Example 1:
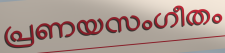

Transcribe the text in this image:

പ്രണയസംഗീതം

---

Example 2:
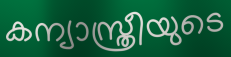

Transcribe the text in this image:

കന്യാസ്ത്രീയുടെ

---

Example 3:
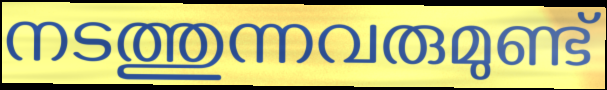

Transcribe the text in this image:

നടത്തുന്നവരുമുണ്ട്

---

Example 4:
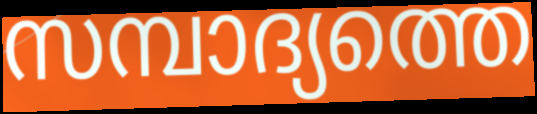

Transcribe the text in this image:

സമ്പാദ്യത്തെ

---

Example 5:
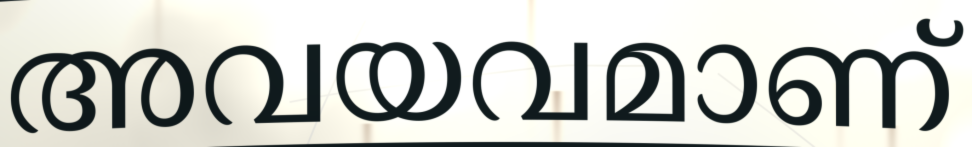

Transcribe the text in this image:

അവയവമാണ്